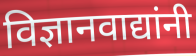
विज्ञानवाद्यांनी